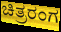
ಚಿತ್ರರಂಗ